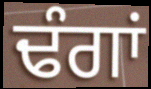
ਢੰਗਾਂ